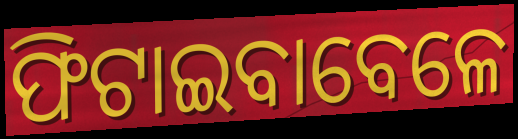
ଫିଟାଇବାବେଳେ